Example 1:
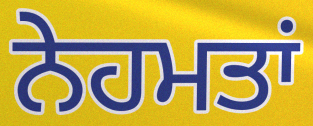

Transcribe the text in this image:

ਨੇਹਮਤਾਂ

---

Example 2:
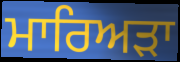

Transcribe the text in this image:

ਮਾਰਿਅੜਾ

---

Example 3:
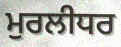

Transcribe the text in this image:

ਮੁਰਲੀਧਰ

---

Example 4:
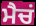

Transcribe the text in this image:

ਮੈਚਂ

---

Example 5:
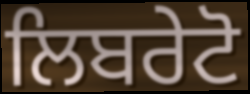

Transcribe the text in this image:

ਲਿਬਰੇਟੋ